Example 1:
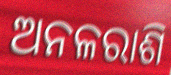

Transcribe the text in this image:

ଅନଳରାଶି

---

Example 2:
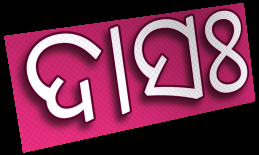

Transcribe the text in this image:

ଦାସଃ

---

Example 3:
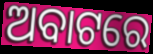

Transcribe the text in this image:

ଅବାଟରେ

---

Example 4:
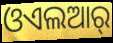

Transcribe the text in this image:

ଓଏଲଆର୍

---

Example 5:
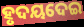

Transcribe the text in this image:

ହୃଦୟଦେଇ